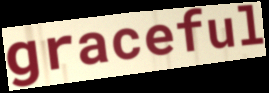
graceful